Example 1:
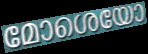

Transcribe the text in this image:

മോശെയോ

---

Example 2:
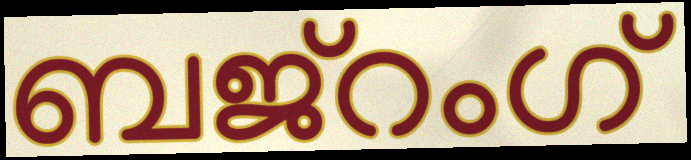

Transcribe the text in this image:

ബജ്റംഗ്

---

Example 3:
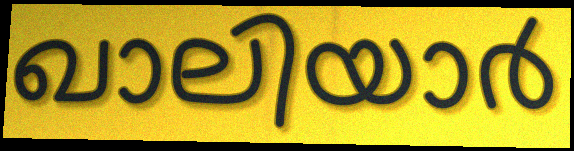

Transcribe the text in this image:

ഖാലിയാർ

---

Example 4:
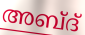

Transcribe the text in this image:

അബ്ദ്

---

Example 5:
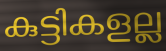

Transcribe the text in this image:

കുട്ടികളല്ല